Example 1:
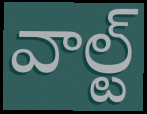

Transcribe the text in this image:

వాల్ట్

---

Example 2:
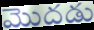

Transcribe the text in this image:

మొదడు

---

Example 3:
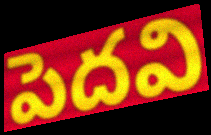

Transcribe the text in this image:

పెదవి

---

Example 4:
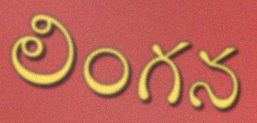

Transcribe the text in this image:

లింగన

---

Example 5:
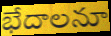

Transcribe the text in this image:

భేదాలనూ